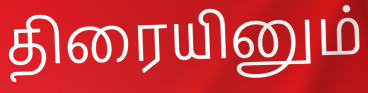
திரையினும்